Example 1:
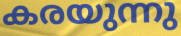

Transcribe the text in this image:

കരയുന്നു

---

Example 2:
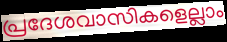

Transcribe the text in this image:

പ്രദേശവാസികളെല്ലാം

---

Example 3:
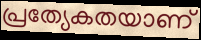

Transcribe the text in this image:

പ്രത്യേകതയാണ്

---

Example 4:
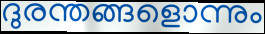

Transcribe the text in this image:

ദുരന്തങ്ങളൊന്നും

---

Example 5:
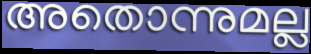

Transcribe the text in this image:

അതൊന്നുമല്ല